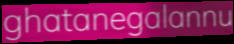
ghatanegalannu